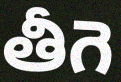
తీగె